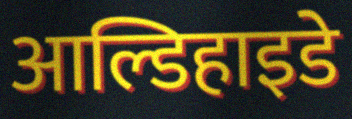
आल्डिहाइडे